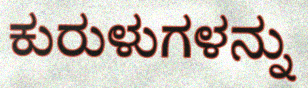
ಕುರುಳುಗಳನ್ನು